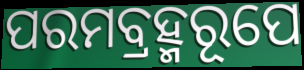
ପରମବ୍ରହ୍ମରୂପେ